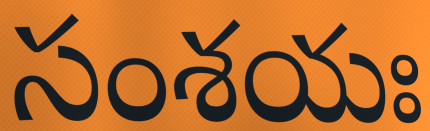
సంశయః